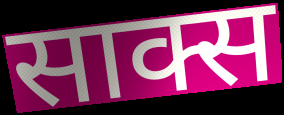
साक्स